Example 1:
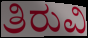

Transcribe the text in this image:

ತಿರುವಿ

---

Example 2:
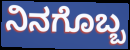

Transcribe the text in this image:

ನಿನಗೊಬ್ಬ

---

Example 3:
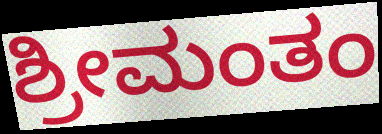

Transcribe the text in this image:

ಶ್ರೀಮಂತಂ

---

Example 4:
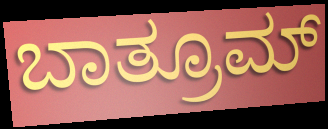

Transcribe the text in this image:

ಬಾತ್ರೂಮ್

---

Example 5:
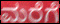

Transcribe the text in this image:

ಮರೆಗೆ